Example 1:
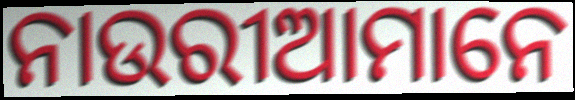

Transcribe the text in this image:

ନାଉରୀଆମାନେ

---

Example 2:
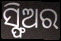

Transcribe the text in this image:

ସ୍ଫିଅର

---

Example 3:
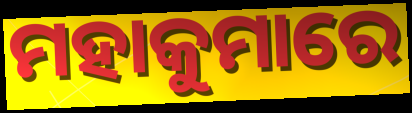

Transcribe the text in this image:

ମହାକୁମାରେ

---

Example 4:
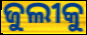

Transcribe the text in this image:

ଜୁଲୀକୁ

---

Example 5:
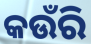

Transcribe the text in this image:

କଉଁରି